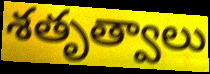
శతృత్వాలు